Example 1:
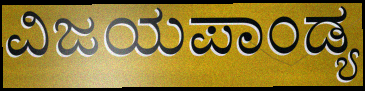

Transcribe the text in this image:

ವಿಜಯಪಾಂಡ್ಯ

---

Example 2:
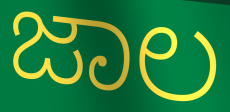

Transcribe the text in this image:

ಜಾಲ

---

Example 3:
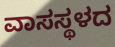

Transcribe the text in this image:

ವಾಸಸ್ಥಳದ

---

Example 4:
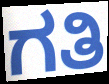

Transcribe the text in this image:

ಗತಿ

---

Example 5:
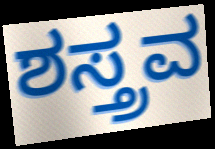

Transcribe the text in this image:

ಶಸ್ತ್ರವ